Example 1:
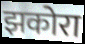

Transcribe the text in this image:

झकोरा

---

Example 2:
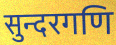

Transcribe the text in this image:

सुन्दरगणि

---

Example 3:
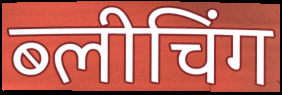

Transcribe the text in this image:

ब्‍लीचिंग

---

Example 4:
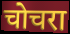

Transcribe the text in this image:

चोचरा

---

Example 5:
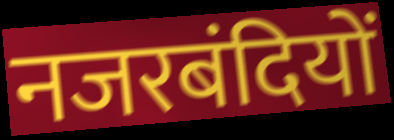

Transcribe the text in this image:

नजरबंदियों